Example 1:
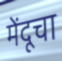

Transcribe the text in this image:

मेंदूचा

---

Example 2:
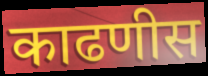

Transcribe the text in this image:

काढणीस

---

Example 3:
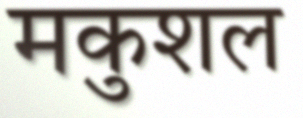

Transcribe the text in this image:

मकुशल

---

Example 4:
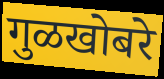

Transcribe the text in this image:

गुळखोबरे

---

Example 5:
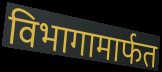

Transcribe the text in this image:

विभागामार्फत